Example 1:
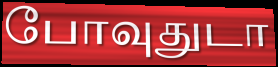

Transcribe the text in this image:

போவுதுடா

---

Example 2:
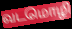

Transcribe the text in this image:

வடமொழி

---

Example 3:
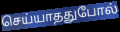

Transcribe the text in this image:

செய்யாததுபோல்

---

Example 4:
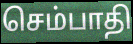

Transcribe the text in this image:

செம்பாதி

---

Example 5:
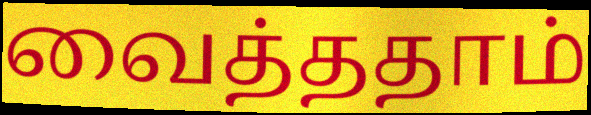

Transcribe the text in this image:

வைத்ததாம்